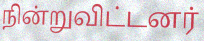
நின்றுவிட்டனர்